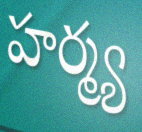
హర్మ్య